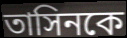
তাসিনকে